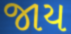
જાય